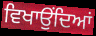
ਵਿਖਾਉਂਦਿਆਂ